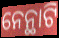
ନେନ୍ଥାଟି